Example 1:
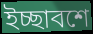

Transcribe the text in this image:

ইচ্ছাবশে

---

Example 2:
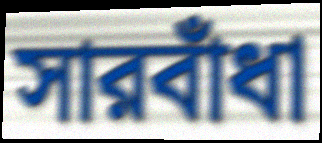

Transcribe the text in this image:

সারবাঁধা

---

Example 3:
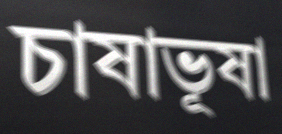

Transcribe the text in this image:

চাষাভূষা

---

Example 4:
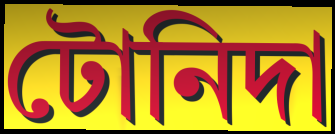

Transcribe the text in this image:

টোনিদা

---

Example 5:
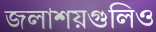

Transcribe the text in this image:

জলাশয়গুলিও